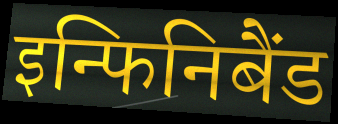
इन्फिनिबैंड